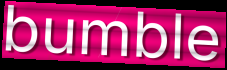
bumble